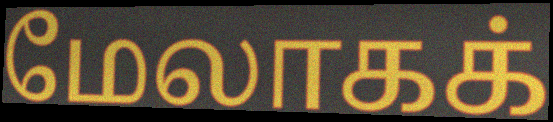
மேலாகக்